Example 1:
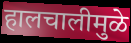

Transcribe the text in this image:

हालचालीमुळे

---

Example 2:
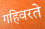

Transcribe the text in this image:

गहिवरते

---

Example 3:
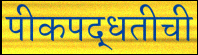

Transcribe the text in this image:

पीकपद्धतीची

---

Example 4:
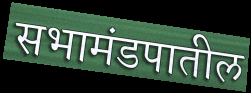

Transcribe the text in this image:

सभामंडपातील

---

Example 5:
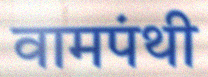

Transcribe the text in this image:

वामपंथी